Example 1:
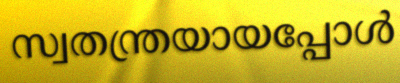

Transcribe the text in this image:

സ്വതന്ത്രയായപ്പോൾ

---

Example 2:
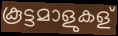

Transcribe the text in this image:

കൂട്ടമാളുകള്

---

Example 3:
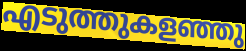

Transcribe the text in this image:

എടുത്തുകളഞ്ഞു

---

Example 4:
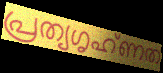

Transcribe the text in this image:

പ്രത്യഗൃഹ്ണത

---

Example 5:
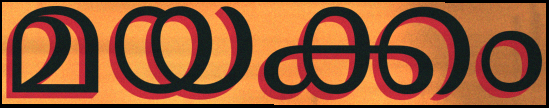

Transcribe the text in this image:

മയക്കം